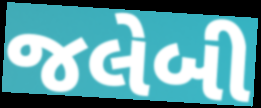
જલેબી